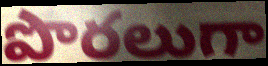
పొరలుగా